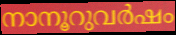
നാനൂറുവർഷം